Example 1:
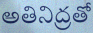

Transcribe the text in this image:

అతినిద్రతో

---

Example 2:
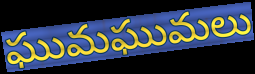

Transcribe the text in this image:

ఘుమఘుమలు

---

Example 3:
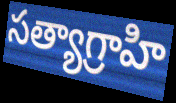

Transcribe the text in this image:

సత్యాగ్రాహి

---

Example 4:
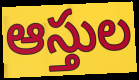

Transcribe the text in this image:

ఆస్తుల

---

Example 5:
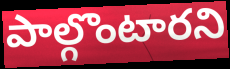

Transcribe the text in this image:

పాల్గొంటారని